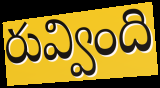
రువ్వింది